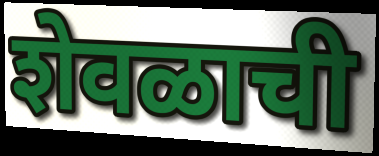
शेवळाची